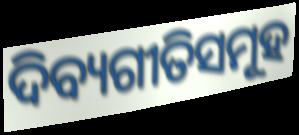
ଦିବ୍ୟଗୀତିସମୂହ